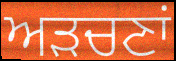
ਅੜਚਣਾਂ